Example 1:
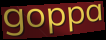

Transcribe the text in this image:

goppa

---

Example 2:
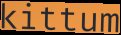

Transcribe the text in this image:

kittum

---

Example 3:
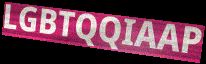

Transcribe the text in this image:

LGBTQQIAAP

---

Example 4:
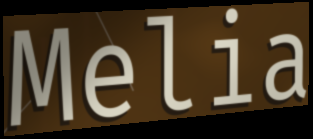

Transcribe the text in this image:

Melia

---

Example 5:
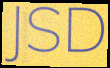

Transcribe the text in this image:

JSD